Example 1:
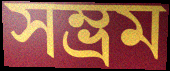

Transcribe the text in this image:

সম্ভ্রম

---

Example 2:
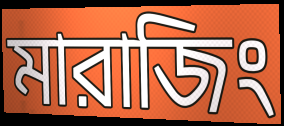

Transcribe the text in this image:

মারাজিং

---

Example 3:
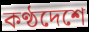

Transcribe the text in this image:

কণ্ঠদেশে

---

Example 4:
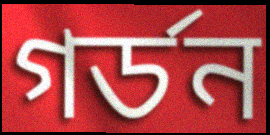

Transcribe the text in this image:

গর্ডন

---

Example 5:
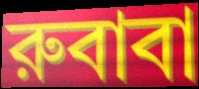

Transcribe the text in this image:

রুবাবা